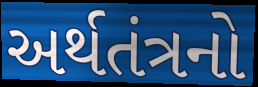
અર્થતંત્રનો